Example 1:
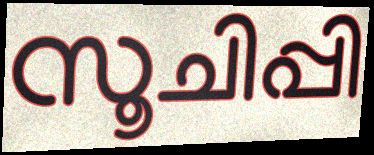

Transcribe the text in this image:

സൂചിപ്പി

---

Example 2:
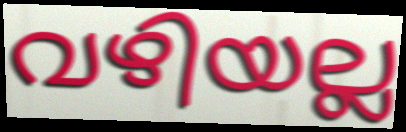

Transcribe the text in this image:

വഴിയല്ല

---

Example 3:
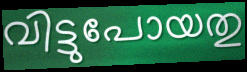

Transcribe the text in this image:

വിട്ടുപോയതു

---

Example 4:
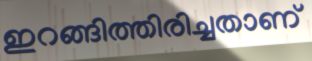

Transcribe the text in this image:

ഇറങ്ങിത്തിരിച്ചതാണ്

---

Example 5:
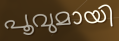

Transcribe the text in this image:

പൂവുമായി